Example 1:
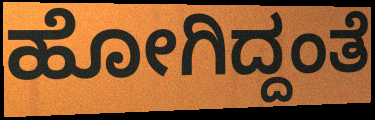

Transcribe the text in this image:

ಹೋಗಿದ್ದಂತೆ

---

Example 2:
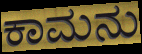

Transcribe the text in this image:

ಕಾಮನು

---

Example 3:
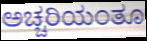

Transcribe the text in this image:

ಅಚ್ಚರಿಯಂತೂ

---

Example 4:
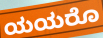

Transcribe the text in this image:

ಯಯರೊ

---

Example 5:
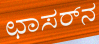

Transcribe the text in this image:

ಛಾಸರ್‌ನ